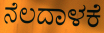
ನೆಲದಾಳಕೆ